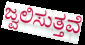
ಜ್ವಲಿಸುತ್ತವೆ